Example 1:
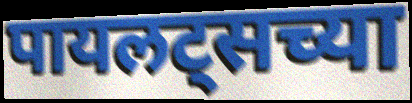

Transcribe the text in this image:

पायलट्सच्या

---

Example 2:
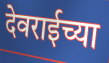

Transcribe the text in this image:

देवराईच्या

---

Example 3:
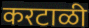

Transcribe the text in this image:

करटाळी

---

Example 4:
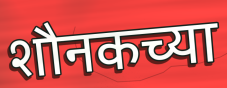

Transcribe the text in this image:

शौनकच्या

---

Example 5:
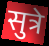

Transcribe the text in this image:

सुत्रे